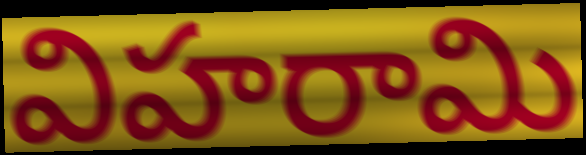
విహరామి